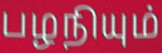
பழநியும்